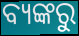
ବ୍ୟଙ୍କରୁ